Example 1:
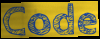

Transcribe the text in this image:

Code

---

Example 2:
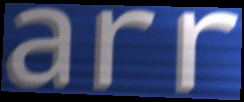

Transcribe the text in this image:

arr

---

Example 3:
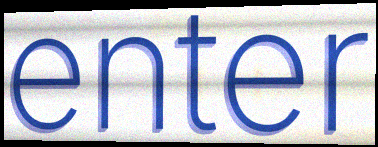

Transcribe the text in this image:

enter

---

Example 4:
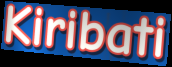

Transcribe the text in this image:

Kiribati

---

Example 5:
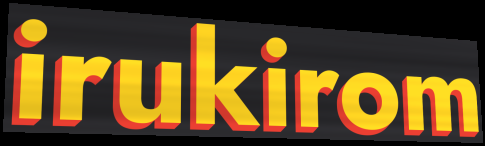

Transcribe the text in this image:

irukirom